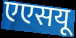
एएसयू